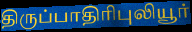
திருப்பாதிரிபுலியூர்